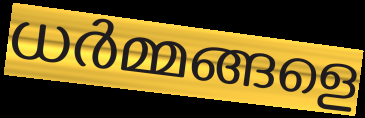
ധർമ്മങ്ങളെ